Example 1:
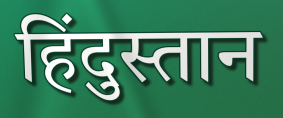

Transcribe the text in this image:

हिंदुस्‍तान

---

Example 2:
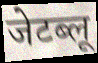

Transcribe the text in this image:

जेटब्लू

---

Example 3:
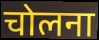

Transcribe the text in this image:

चोलना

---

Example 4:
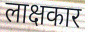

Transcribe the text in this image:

लाक्षकार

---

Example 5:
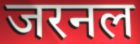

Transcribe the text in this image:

जरनल